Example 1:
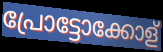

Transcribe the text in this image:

പ്രോട്ടോക്കോള്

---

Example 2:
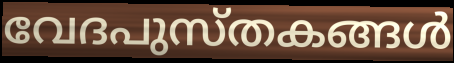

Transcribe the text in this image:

വേദപുസ്തകങ്ങൾ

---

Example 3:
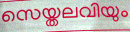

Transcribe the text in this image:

സെയ്തലവിയും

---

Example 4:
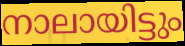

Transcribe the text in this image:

നാലായിട്ടും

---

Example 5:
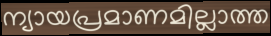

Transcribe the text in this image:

ന്യായപ്രമാണമില്ലാത്ത